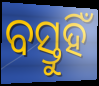
ବସ୍ତୁହିଁ